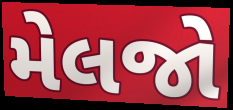
મેલજો